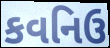
કવનિઉ